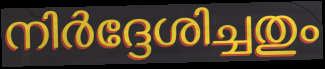
നിർദ്ദേശിച്ചതും